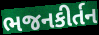
ભજનકીર્તન